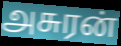
அசுரன்